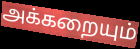
அக்கறையும்